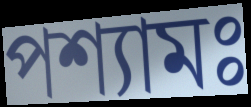
পশ্যামঃ